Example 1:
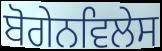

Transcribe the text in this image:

ਬੋਗੇਨਵਿਲੇਸ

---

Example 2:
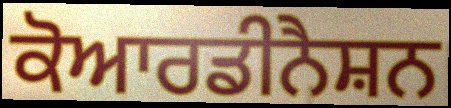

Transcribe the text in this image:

ਕੋਆਰਡੀਨੈਸ਼ਨ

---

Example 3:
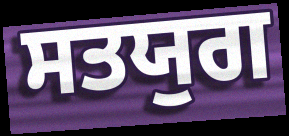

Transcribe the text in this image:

ਸਤਯੁਗ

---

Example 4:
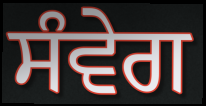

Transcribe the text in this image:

ਸੰਵੇਗ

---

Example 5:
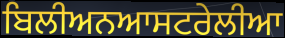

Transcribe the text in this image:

ਬਿਲੀਅਨਆਸਟਰੇਲੀਆ